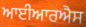
ਆਈਆਰਐਸ